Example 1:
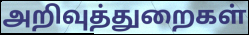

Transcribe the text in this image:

அறிவுத்துறைகள்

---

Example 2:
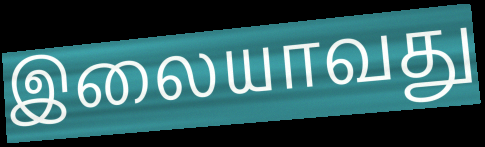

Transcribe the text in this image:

இலையாவது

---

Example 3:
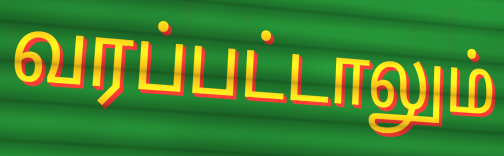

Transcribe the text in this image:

வரப்பட்டாலும்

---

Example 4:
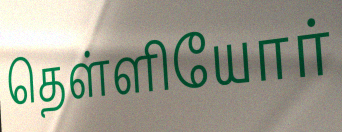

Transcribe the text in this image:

தெள்ளியோர்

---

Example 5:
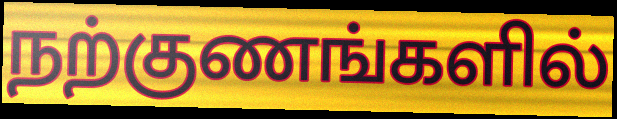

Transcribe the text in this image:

நற்குணங்களில்